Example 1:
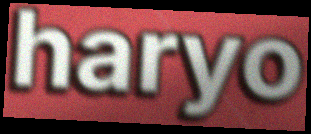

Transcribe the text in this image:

haryo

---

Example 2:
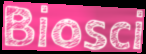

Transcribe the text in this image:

Biosci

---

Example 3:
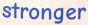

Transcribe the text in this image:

stronger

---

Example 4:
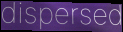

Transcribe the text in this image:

dispersed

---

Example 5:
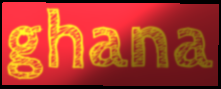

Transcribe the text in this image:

ghana